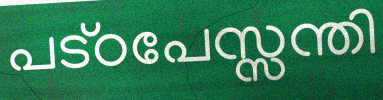
പട്ഠപേസ്സന്തി